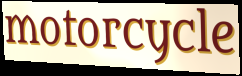
motorcycle